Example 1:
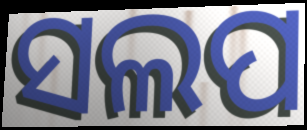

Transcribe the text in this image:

ସଲପ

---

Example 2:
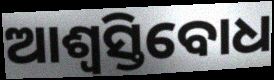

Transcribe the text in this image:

ଆଶ୍ଵସ୍ତିବୋଧ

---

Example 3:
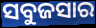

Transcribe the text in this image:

ସବୁଜସାର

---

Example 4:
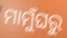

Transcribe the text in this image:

ମାମୁଁଘରୁ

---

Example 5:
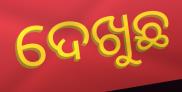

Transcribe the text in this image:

ଦେଖୁଛ